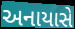
અનાયાસે